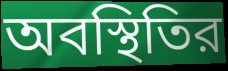
অবস্থিতির